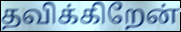
தவிக்கிறேன்